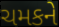
ચમકને